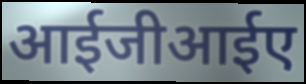
आईजीआईए